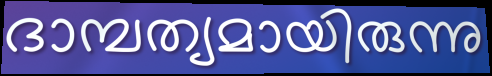
ദാമ്പത്യമായിരുന്നു